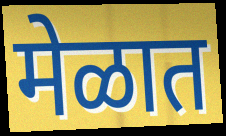
मेळात